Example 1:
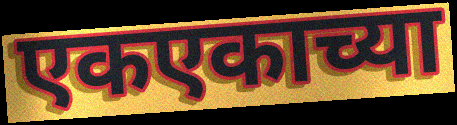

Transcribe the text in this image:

एकएकाच्या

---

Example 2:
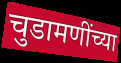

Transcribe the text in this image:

चुडामणींच्या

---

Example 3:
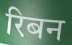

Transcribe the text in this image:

रिबन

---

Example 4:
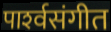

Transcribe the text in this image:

पार्श्‍वसंगीत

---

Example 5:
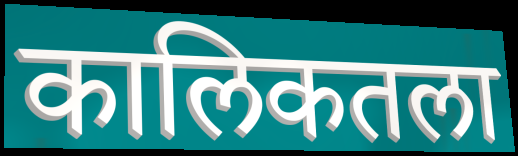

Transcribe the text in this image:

कालिकतला